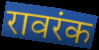
रावरंक